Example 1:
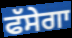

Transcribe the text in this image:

ਫੱਸੇਗਾ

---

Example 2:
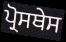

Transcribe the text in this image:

ਪ੍ਰੋਸਥੇਸ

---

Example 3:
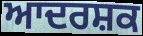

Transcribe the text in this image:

ਆਦਰਸ਼ਕ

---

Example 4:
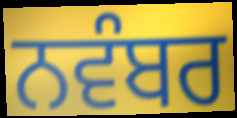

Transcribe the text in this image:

ਨਵੰਬਰ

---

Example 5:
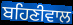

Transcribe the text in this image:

ਬਹਿਣੀਵਾਲ